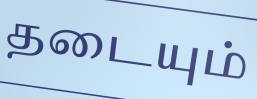
தடையும்